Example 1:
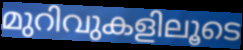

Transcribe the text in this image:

മുറിവുകളിലൂടെ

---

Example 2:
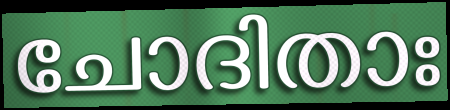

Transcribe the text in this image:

ചോദിതാഃ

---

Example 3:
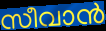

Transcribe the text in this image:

സീവാൻ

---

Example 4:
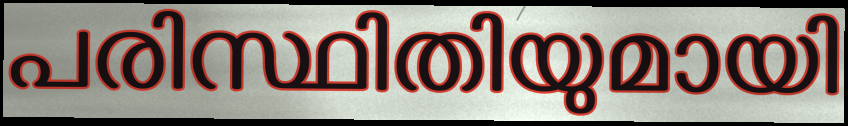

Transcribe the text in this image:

പരിസ്ഥിതിയുമായി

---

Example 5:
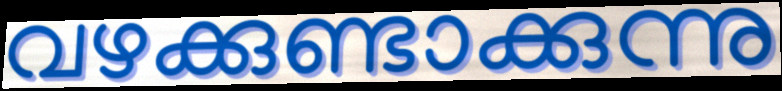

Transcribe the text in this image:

വഴക്കുണ്ടാക്കുന്നു